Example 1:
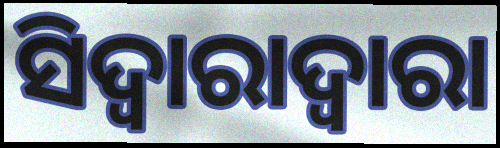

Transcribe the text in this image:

ସିଦ୍ୱାରାଦ୍ୱାରା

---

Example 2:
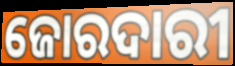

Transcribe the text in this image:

ଜୋରଦାରୀ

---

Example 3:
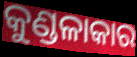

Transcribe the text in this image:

କୁଣ୍ଡଳାକାର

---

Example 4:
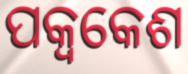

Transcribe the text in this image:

ପକ୍ଵକେଶ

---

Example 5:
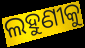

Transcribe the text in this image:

ଲହୁଣୀକୁ